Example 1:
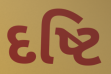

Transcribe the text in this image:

દષ્ટિ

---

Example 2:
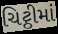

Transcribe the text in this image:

ચિટ્ઠીમાં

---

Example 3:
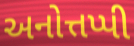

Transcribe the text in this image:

અનોત્તપ્પી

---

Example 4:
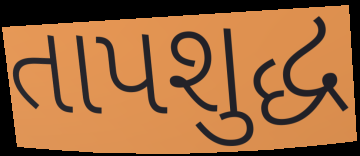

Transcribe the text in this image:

તાપશુદ્ધ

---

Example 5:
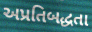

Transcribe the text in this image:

અપ્રતિબદ્ધતા